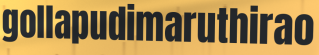
gollapudimaruthirao